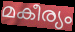
മകീര്യം